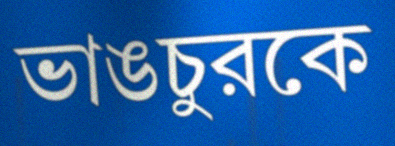
ভাঙচুরকে